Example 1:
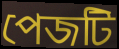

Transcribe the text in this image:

পেজটি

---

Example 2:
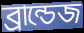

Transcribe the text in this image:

ব্রান্ডেজ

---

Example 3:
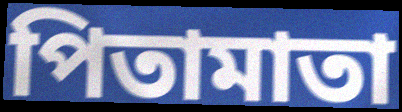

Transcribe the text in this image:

পিতামাতা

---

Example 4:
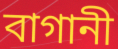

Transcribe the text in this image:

বাগানী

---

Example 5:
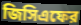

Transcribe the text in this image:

জিসিএফের